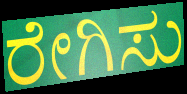
ರೇಗಿಸು